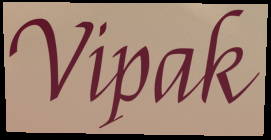
Vipak